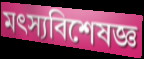
মৎস্যবিশেষজ্ঞ